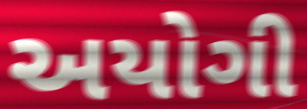
અયોગી